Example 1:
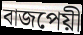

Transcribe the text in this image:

বাজপেয়ী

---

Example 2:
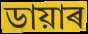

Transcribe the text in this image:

ডায়াৰ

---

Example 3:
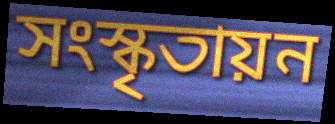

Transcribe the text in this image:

সংস্কৃতায়ন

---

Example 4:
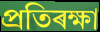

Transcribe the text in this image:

প্ৰতিৰক্ষা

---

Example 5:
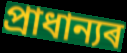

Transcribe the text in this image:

প্ৰাধান্যৰ